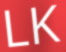
LK